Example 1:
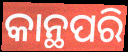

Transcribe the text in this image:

କାନ୍ଥପରି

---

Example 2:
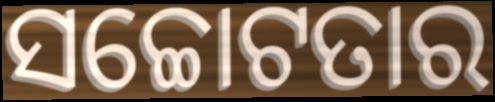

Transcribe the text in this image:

ସଚ୍ଚୋଟତାର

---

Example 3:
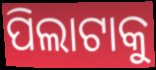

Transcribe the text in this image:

ପିଲାଟାକୁ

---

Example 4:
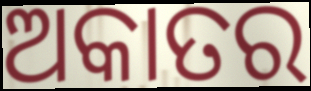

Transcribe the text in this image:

ଅକାତର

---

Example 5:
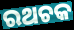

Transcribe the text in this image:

ରଥଚକ